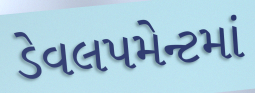
ડેવલપમેન્ટમાં